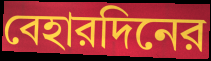
বেহারদিনের